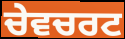
ਚੇਵਚਰਟ